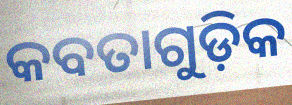
କବତାଗୁଡ଼ିକ